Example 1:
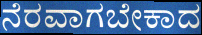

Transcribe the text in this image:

ನೆರವಾಗಬೇಕಾದ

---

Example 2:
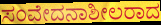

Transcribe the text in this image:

ಸಂವೇದನಾಶೀಲರಾದ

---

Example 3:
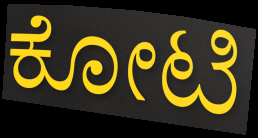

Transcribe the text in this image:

ಕೋಟಿ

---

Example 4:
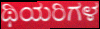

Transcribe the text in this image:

ಥಿಯರಿಗಳ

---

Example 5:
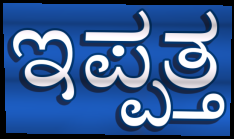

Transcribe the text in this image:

ಇಪ್ಪತ್ತ